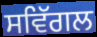
ਸਵਿੱਗਲ